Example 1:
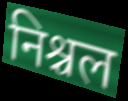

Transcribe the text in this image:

निश्चल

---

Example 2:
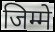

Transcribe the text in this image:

जिम्मे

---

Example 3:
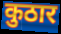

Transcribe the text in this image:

कुठार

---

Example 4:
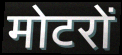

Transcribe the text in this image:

मोटरों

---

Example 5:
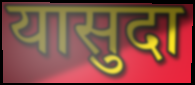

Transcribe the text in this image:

यासुदा